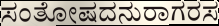
ಸಂತೋಷದನುರಾಗರಸ